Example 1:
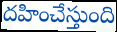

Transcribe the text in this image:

దహించేస్తుంది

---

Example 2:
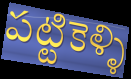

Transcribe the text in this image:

పట్టికెళ్ళి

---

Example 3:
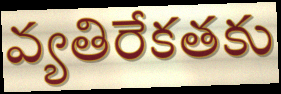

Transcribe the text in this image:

వ్యతిరేకతకు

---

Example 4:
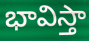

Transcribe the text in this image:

భావిస్తా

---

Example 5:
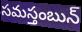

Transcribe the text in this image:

సమస్తంబున్